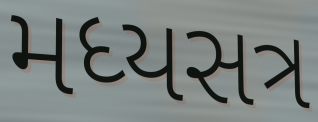
મધ્યસત્ર